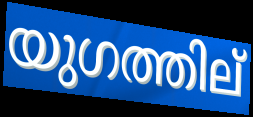
യുഗത്തില്